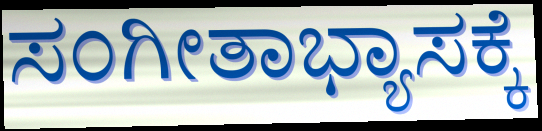
ಸಂಗೀತಾಭ್ಯಾಸಕ್ಕೆ